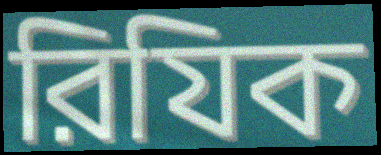
রিযিক